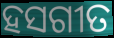
ହସଗୀତ